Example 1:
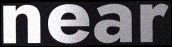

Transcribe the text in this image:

near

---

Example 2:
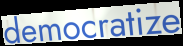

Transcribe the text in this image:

democratize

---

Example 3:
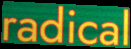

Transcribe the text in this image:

radical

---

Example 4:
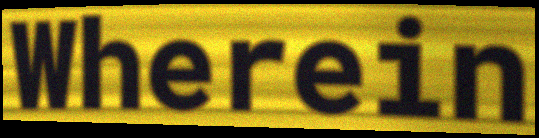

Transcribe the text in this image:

Wherein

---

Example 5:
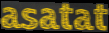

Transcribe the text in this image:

asatat